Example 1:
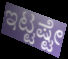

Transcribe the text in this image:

ಇಟ್ಟಷ್ಟೇ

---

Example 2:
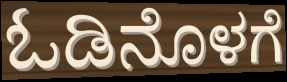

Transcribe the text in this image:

ಓಡಿನೊಳಗೆ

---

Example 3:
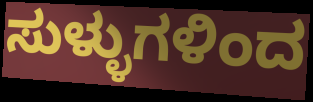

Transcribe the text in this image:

ಸುಳ್ಳುಗಳಿಂದ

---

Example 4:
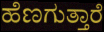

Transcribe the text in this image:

ಹೆಣಗುತ್ತಾರೆ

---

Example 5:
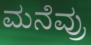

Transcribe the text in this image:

ಮನೆವ್ರು